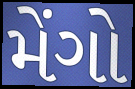
મેંગો